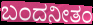
ಬಂದನೀತಂ